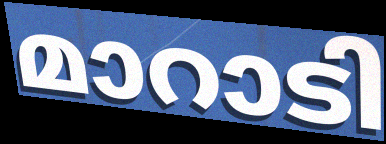
മാറാടി